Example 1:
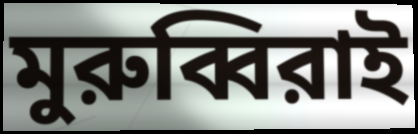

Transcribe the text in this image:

মুরুব্বিরাই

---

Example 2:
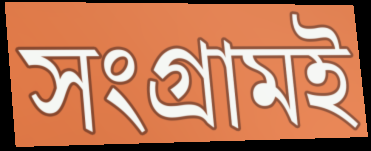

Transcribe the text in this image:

সংগ্রামই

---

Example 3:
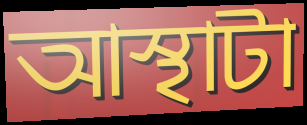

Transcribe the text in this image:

আস্থাটা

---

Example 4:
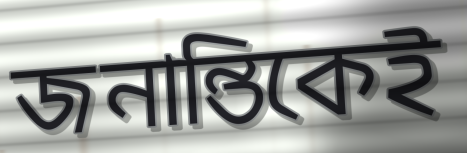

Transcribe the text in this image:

জনান্তিকেই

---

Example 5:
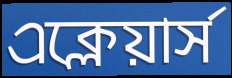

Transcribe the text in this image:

এক্লেয়ার্স